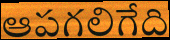
ఆపగలిగేది